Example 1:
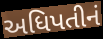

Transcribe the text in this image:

અધિપતીનં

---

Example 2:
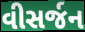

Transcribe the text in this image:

વીસર્જન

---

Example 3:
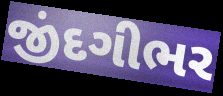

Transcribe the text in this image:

જીંદગીભર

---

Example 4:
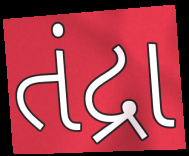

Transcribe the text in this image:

તંદ્રા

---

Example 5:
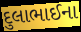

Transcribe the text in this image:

દુલાભાઈના